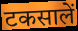
टकसालें